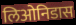
लिओनिडास